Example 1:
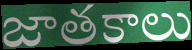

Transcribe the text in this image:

జాతకాలు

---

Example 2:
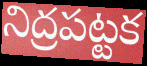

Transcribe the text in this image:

నిద్రపట్టక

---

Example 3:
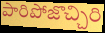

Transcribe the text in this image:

పారిపోజొచ్చిరి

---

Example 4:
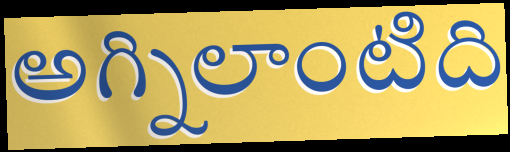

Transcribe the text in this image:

అగ్నిలాంటిది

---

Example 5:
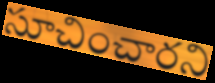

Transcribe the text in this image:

సూచించారని